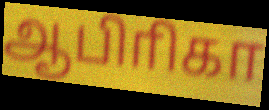
ஆபிரிகா